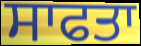
ਸਾਫਤਾ